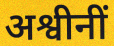
अश्वीनीं